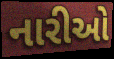
નારીઓ